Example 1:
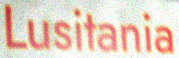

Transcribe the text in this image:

Lusitania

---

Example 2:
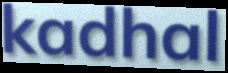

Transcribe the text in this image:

kadhal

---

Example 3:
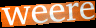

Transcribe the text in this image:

weere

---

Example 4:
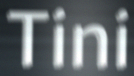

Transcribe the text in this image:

Tini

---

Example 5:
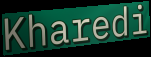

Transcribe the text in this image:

Kharedi